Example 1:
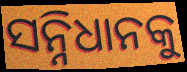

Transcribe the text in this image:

ସନ୍ନିଧାନକୁ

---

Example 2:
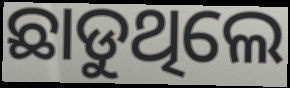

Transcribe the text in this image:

ଛାଡୁଥିଲେ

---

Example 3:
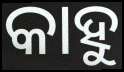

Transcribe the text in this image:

କାହୁ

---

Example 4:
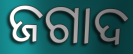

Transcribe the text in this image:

ଜଗାଦ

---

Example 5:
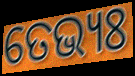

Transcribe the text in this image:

ତେଭ୍ୟଃ